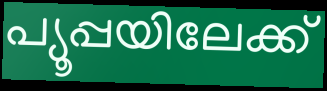
പ്യൂപ്പയിലേക്ക്